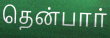
தென்பார்